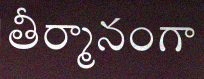
తీర్మానంగా